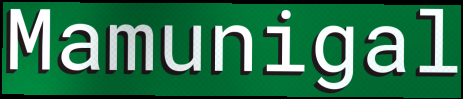
Mamunigal